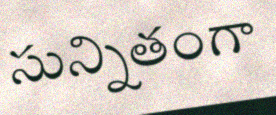
సున్నితంగా